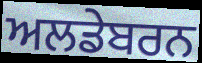
ਅਲਡੇਬਰਨ